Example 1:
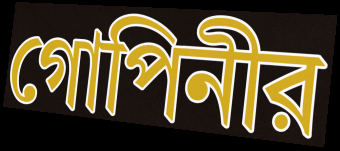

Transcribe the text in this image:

গোপিনীর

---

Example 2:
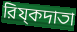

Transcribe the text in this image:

রিয্কদাতা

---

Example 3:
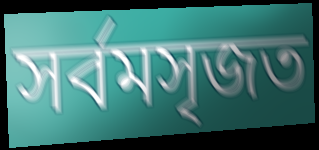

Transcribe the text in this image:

সর্বমসৃজত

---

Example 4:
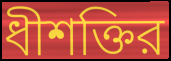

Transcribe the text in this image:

ধীশক্তির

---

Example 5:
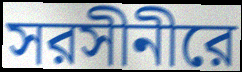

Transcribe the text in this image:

সরসীনীরে